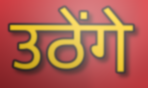
उठेंगे